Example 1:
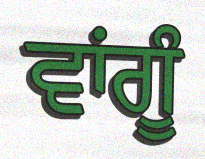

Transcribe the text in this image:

ਵਾਂਗੂੰ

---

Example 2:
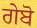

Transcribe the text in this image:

ਗੇਬੋ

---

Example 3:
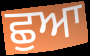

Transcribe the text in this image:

ਛੁਆ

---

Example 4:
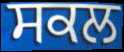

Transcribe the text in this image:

ਸਕਲ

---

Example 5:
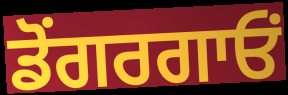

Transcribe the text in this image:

ਡੋਂਗਰਗਾਓਂ